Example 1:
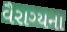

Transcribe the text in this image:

વૈરાગ્યના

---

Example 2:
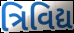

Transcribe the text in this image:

ત્રિવિદ્ય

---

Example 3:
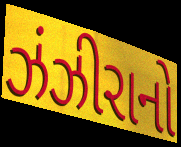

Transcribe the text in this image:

ઝંઝીરાનો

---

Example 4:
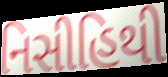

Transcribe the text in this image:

નિસીહિથી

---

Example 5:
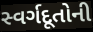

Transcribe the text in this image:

સ્વર્ગદૂતોની